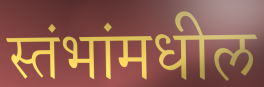
स्तंभांमधील